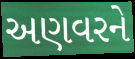
અણવરને